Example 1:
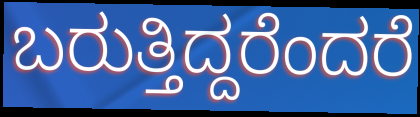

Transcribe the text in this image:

ಬರುತ್ತಿದ್ದರೆಂದರೆ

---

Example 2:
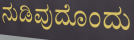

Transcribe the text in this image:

ನುಡಿವುದೊಂದು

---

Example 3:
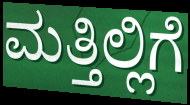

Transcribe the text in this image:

ಮತ್ತಿಲ್ಲಿಗೆ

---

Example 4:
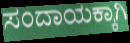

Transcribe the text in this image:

ಸಂದಾಯಕ್ಕಾಗಿ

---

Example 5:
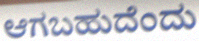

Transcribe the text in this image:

ಆಗಬಹುದೆಂದು